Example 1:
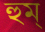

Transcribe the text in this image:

হুম্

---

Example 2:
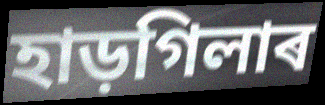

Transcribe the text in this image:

হাড়গিলাৰ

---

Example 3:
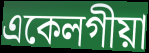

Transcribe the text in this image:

একেলগীয়া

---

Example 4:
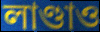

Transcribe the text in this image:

লাণ্ডাও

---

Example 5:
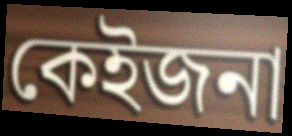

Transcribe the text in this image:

কেইজনা